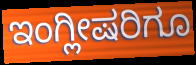
ಇಂಗ್ಲೀಷರಿಗೂ